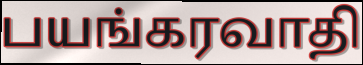
பயங்கரவாதி